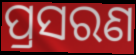
ପ୍ରସରଣ